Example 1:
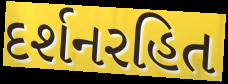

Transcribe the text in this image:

દર્શનરહિત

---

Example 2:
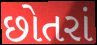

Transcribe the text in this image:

છોતરાં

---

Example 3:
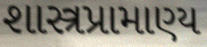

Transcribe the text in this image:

શાસ્ત્રપ્રામાણ્ય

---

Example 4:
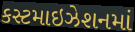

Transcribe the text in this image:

કસ્ટમાઇઝેશનમાં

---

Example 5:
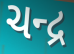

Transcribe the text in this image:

ચન્દ્ર